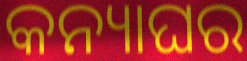
କନ୍ୟାଘର